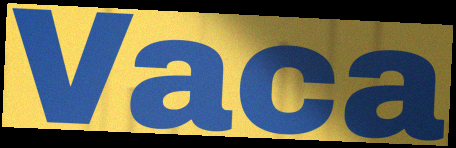
Vaca